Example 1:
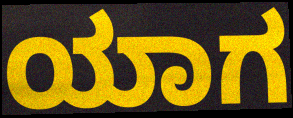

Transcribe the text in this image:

ಯಾಗ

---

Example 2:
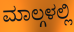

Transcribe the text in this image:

ಮಾಲ್ಗಳಲ್ಲಿ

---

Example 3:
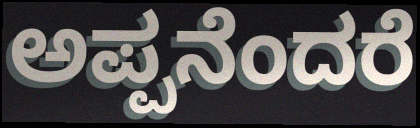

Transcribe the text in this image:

ಅಪ್ಪನೆಂದರೆ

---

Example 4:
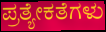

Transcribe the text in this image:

ಪ್ರತ್ಯೇಕತೆಗಳು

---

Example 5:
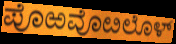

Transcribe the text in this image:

ಪೊಱವೊೞಲೊಳ್